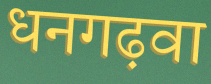
धनगढ़वा